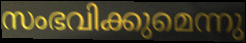
സംഭവിക്കുമെന്നു